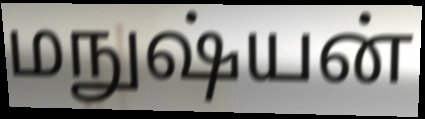
மநுஷ்யன்